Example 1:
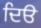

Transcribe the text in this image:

ਦਿੳ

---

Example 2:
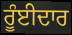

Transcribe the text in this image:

ਰੂੰਈਦਾਰ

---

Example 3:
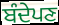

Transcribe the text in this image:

ਬੰਦੇਪਣ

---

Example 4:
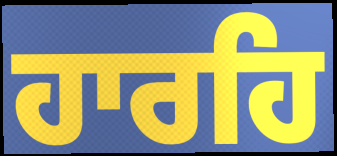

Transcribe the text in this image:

ਹਾਰਹਿ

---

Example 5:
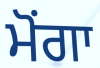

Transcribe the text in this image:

ਮੋਂਗਾ